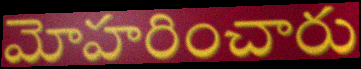
మోహరించారు